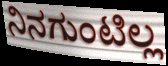
ನಿನಗುಂಟಿಲ್ಲ